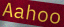
Aahoo